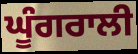
ਘੂੰਗਰਾਲੀ